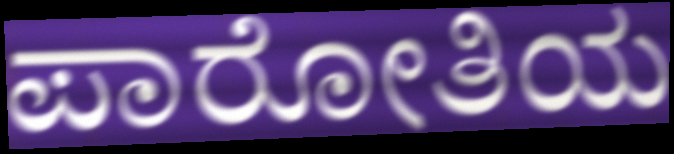
ಪಾರೋತಿಯ